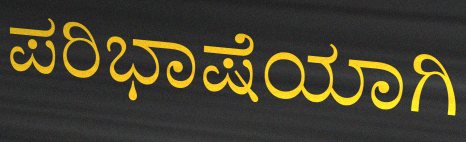
ಪರಿಭಾಷೆಯಾಗಿ